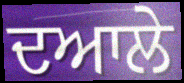
ਦਆਲੇ